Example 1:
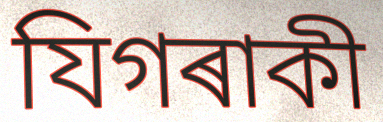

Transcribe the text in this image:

যিগৰাকী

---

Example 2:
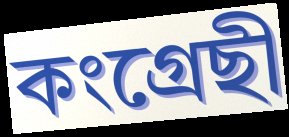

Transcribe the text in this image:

কংগ্ৰেছী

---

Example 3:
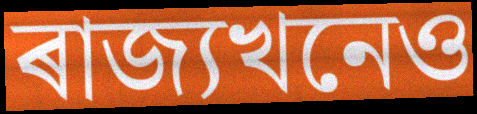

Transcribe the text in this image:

ৰাজ্যখনেও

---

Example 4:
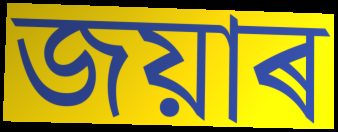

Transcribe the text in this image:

জয়াৰ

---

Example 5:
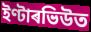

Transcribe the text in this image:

ইণ্টাৰভিউত